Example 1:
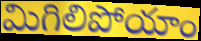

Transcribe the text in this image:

మిగిలిపోయాం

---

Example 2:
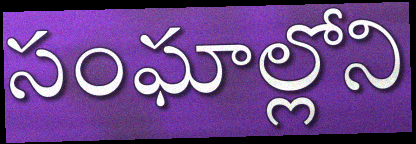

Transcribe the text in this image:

సంఘాల్లోని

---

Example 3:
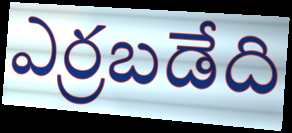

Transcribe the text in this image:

ఎర్రబడేది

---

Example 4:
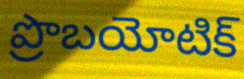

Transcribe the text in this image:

ప్రొబయోటిక్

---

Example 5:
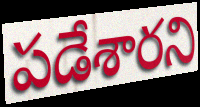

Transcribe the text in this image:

పడేశారని